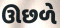
ઊછળે